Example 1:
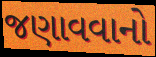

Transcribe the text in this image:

જણાવવાનો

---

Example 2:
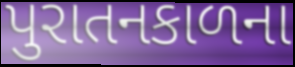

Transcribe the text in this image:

પુરાતનકાળના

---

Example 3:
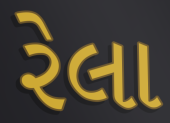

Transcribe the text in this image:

રેલા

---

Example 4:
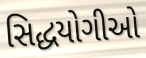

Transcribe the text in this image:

સિદ્ધયોગીઓ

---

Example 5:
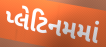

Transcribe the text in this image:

પ્લેટિનમમાં